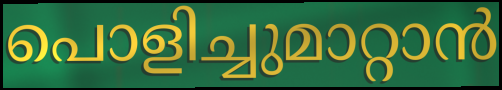
പൊളിച്ചുമാറ്റാൻ